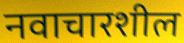
नवाचारशील